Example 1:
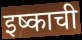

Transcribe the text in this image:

इष्काची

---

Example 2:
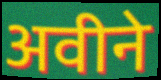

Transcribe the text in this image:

अवीने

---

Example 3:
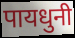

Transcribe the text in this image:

पायधुनी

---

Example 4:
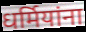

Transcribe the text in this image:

धर्मियांना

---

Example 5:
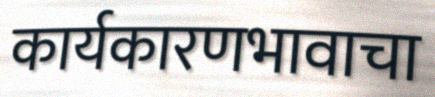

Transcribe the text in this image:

कार्यकारणभावाचा